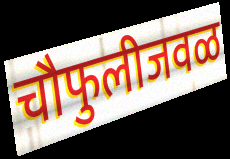
चौफुलीजवळ